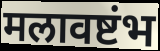
मलावष्टंभ